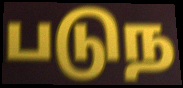
படுந